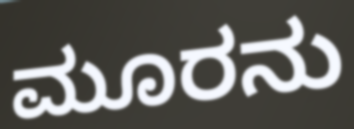
ಮೂರನು